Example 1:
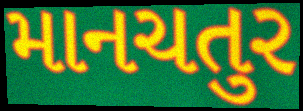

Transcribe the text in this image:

માનચતુર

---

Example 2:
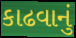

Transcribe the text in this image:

કાઢવાનું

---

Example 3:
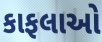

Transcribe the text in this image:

કાફલાઓ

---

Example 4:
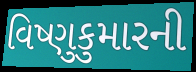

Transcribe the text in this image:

વિષ્ણુકુમારની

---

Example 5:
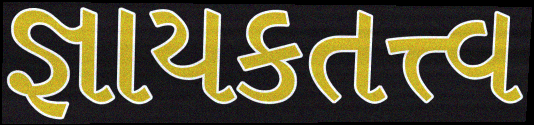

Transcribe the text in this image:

જ્ઞાયકતત્ત્વ